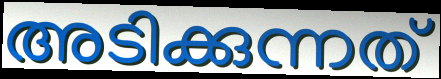
അടിക്കുന്നത്